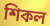
শিকল